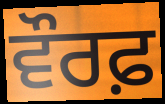
ਵੌਰਫ਼